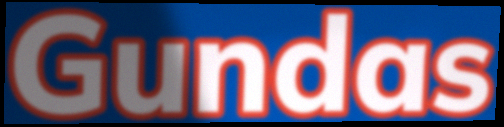
Gundas